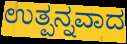
ಉತ್ಪನ್ನವಾದ